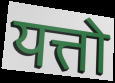
यत्तो